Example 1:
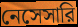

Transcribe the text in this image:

নেসেসারি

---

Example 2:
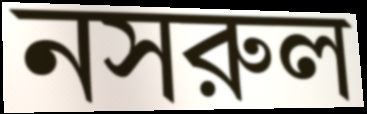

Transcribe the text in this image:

নসরুল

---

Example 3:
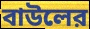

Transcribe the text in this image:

বাউলের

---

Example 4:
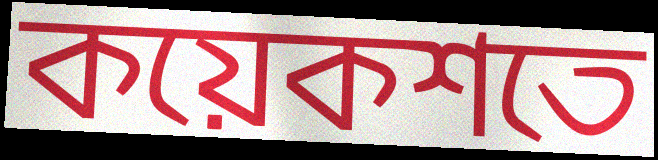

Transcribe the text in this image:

কয়েকশতে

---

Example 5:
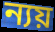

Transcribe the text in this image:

ন্যয়